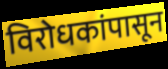
विरोधकांपासून